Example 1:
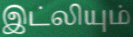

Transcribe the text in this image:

இட்லியும்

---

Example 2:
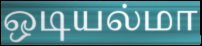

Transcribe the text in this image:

ஒடியல்மா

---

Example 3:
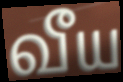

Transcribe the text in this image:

வீய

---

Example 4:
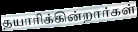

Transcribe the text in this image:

தயாரிக்கின்றார்கள்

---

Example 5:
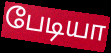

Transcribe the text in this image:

பேடியா